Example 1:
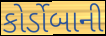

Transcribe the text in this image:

કોર્ડોબાની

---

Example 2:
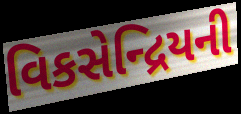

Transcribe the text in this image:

વિકસેન્દ્રિયની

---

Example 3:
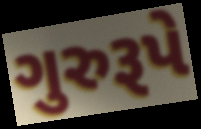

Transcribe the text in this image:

ગુરુરૂપે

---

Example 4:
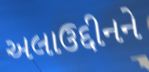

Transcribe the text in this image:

અલાઉદ્દીનને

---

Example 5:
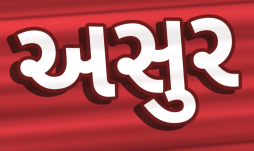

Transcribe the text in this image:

અસુર